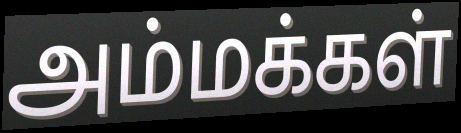
அம்மக்கள்